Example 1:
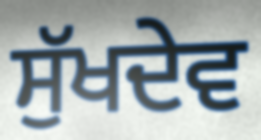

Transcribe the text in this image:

ਸੁੱਖਦੇਵ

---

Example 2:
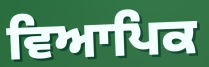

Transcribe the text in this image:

ਵਿਆਪਿਕ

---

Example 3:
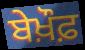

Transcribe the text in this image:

ਬੇਖ਼ੌਫ਼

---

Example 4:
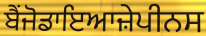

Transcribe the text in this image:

ਬੈਂਜੋਡਾਇਆਜ਼ੇਪੀਨਸ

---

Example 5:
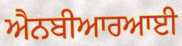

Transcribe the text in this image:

ਐਨਬੀਆਰਆਈ